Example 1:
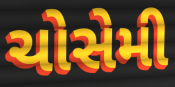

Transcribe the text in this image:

ચોસેમી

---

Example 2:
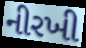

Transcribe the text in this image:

નીરખી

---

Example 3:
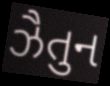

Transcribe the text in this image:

ઝૈતુન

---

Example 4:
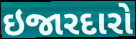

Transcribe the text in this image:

ઇજારદારો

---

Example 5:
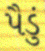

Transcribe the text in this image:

પૈડું